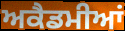
ਅਕੈਡਮੀਆਂ